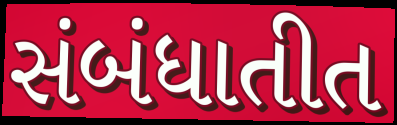
સંબંધાતીત